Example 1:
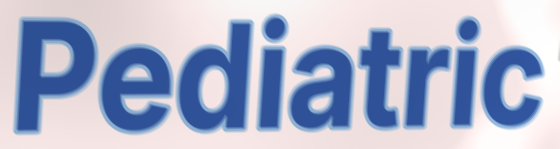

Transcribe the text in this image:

Pediatric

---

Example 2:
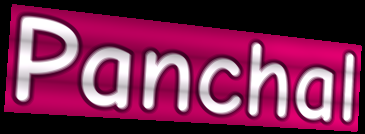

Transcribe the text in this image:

Panchal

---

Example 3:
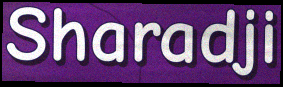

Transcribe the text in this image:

Sharadji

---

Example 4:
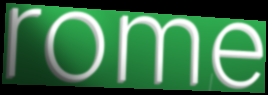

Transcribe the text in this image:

rome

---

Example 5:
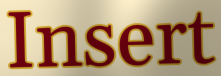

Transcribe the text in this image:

Insert